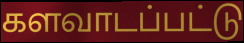
களவாடப்பட்டு